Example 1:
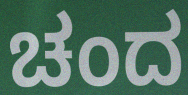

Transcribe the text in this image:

ಚಂದ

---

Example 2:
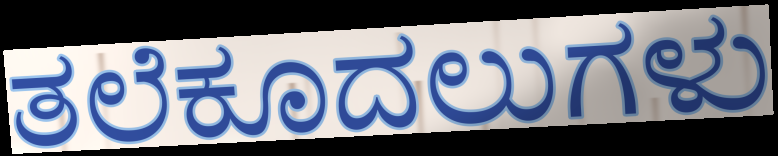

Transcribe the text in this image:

ತಲೆಕೂದಲುಗಳು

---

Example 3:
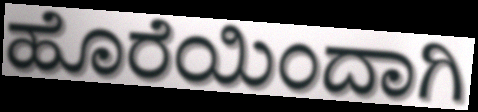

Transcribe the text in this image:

ಹೊರೆಯಿಂದಾಗಿ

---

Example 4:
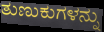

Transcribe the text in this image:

ತುಣುಕುಗಳನ್ನು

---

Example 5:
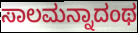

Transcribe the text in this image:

ಸಾಲಮನ್ನಾದಂಥ